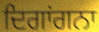
ਦਿਗਾਂਗਨਾ